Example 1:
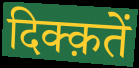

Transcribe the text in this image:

दिक्क़तें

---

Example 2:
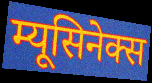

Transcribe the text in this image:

म्यूसिनेक्स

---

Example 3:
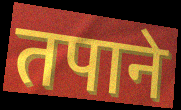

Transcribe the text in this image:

तपाने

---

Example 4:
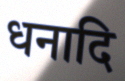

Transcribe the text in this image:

धनादि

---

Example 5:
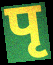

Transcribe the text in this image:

पृ